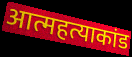
आत्महत्याकांड